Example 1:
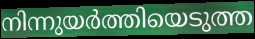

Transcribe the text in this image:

നിന്നുയർത്തിയെടുത്ത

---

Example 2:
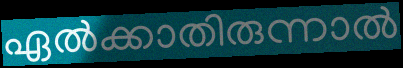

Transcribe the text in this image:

ഏൽക്കാതിരുന്നാൽ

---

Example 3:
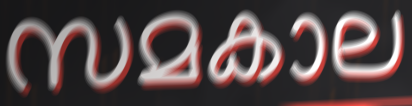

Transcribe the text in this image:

സമകാല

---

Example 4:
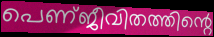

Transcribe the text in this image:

പെണ്ജീവിതത്തിന്റെ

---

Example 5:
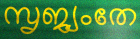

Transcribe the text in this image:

സൃജ്യംതേ